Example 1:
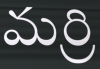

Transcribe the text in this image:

మర్రి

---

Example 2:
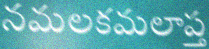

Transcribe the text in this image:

నమలకమలాప్త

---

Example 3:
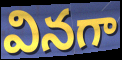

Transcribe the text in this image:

వినగా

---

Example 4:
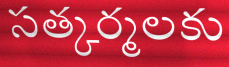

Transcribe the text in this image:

సత్కర్మలకు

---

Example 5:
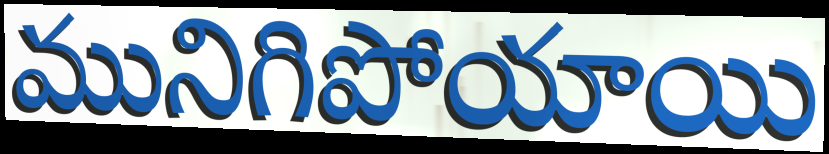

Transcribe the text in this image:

మునిగిపోయాయి